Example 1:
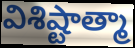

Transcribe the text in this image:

విశిష్టాత్మా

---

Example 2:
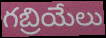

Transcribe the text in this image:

గబ్రియేలు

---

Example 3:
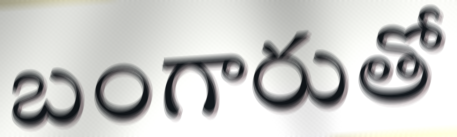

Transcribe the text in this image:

బంగారుతో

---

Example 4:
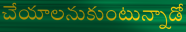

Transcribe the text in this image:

చేయాలనుకుంటున్నాడో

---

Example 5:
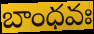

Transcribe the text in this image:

బాంధవః